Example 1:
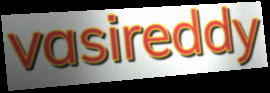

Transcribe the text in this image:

vasireddy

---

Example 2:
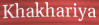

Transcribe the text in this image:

Khakhariya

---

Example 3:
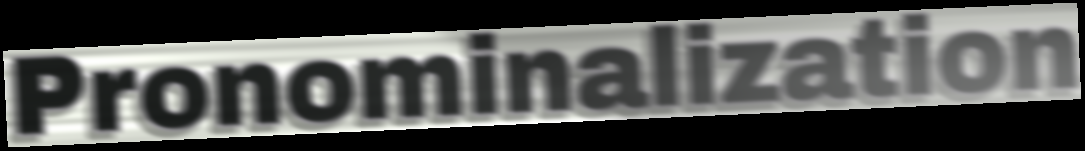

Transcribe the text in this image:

Pronominalization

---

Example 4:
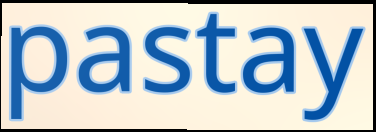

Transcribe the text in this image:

pastay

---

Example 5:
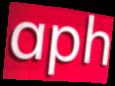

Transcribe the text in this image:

aph